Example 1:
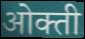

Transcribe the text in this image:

ओक्ती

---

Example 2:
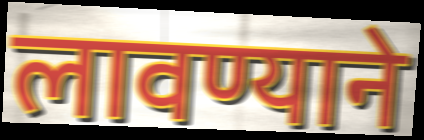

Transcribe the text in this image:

लावण्याने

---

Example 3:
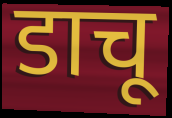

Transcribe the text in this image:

डाचू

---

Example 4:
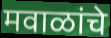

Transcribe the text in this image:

मवाळांचे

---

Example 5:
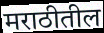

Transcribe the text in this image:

मराठीतील